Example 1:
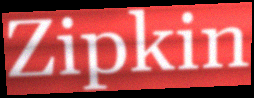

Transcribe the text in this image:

Zipkin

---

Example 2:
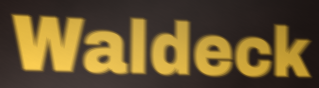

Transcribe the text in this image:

Waldeck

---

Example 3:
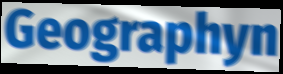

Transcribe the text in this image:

Geographyn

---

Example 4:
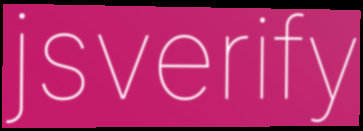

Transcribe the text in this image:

jsverify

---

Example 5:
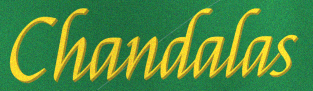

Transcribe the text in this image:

Chandalas